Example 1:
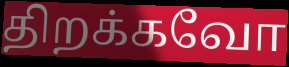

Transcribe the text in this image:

திறக்கவோ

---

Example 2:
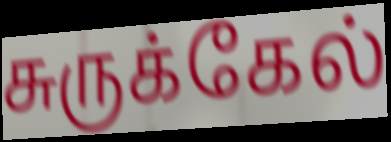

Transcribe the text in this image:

சுருக்கேல்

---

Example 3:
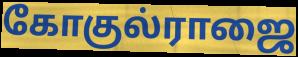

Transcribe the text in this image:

கோகுல்ராஜை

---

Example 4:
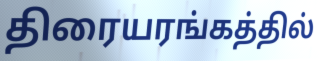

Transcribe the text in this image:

திரையரங்கத்தில்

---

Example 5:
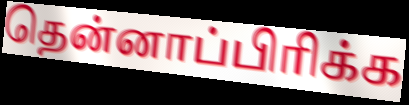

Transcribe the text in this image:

தென்னாப்பிரிக்க